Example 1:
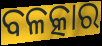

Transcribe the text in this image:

ବଳତ୍କାର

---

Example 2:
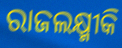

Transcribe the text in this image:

ରାଜଲକ୍ଷ୍ମୀକି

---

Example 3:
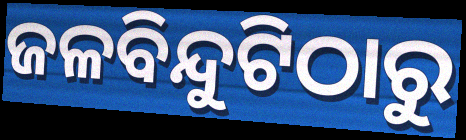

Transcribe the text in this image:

ଜଳବିନ୍ଦୁଟିଠାରୁ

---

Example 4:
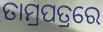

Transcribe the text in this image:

ତାମ୍ରପତ୍ରରେ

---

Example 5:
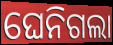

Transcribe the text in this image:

ଘେନିଗଲା